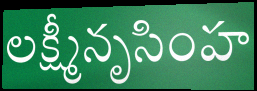
లక్ష్మీనృసింహ